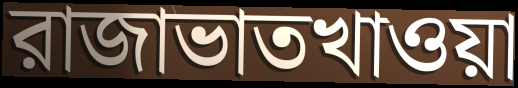
রাজাভাতখাওয়া